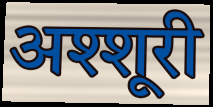
अश्‍शूरी